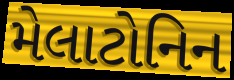
મેલાટોનિન